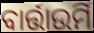
ବାର୍ତ୍ତାଉର୍ମି